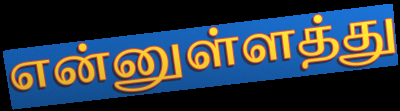
என்னுள்ளத்து